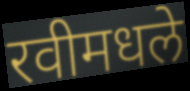
रवीमधले